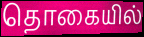
தொகையில்